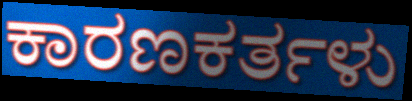
ಕಾರಣಕರ್ತಳು